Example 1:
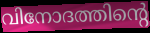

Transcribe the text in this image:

വിനോദത്തിന്റെ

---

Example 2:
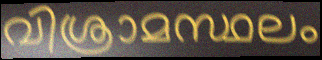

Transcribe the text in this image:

വിശ്രാമസ്ഥലം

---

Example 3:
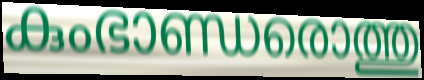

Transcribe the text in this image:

കുംഭാണ്ഡരൊത്തു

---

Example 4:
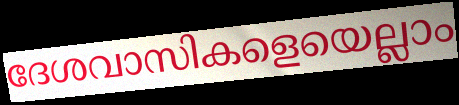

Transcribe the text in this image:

ദേശവാസികളെയെല്ലാം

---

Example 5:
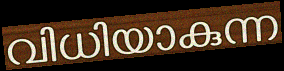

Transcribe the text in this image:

വിധിയാകുന്ന